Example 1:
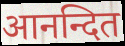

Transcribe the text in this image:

आनन्दित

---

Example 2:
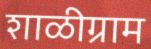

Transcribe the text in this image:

शाळीग्राम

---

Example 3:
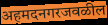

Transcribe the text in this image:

अहमदनगरजवळील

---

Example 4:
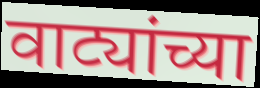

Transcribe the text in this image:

वाट्यांच्या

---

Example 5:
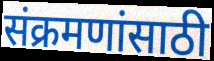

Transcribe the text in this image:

संक्रमणांसाठी